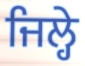
ਜਿਲ੍ਹੇ